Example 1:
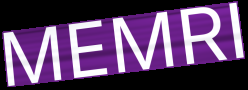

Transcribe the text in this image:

MEMRI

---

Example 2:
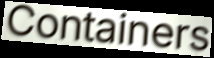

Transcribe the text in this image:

Containers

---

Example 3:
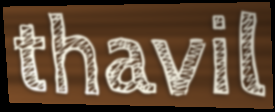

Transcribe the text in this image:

thavil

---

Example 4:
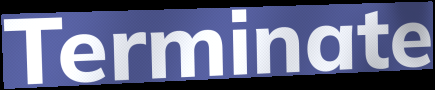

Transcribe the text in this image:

Terminate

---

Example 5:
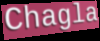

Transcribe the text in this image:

Chagla